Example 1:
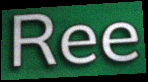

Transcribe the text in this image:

Ree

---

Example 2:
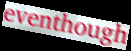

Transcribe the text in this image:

eventhough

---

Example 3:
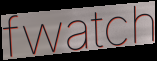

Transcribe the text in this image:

fwatch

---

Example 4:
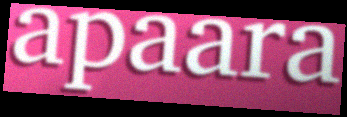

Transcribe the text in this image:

apaara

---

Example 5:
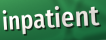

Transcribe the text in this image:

inpatient